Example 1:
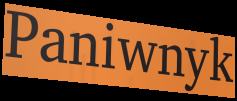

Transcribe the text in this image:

Paniwnyk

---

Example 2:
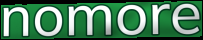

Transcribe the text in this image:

nomore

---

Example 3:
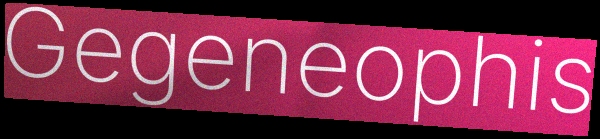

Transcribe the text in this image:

Gegeneophis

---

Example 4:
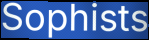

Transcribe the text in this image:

Sophists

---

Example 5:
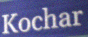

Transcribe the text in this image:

Kochar